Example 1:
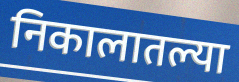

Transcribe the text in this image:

निकालातल्या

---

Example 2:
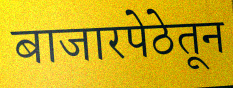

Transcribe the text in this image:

बाजारपेठेतून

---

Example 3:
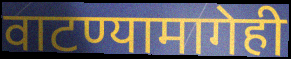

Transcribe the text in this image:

वाटण्यामागेही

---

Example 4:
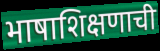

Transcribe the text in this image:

भाषाशिक्षणाची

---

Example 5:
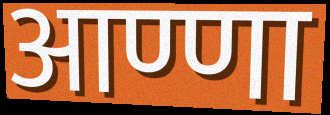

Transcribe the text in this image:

आण्णा